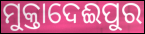
ମୁକ୍ତାଦେଈପୁର